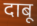
दाबू